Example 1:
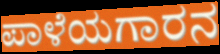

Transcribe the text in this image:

ಪಾಳೆಯಗಾರನ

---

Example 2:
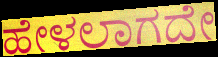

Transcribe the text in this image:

ಹೇಳಲಾಗದೇ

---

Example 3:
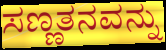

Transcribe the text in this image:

ಸಣ್ಣತನವನ್ನು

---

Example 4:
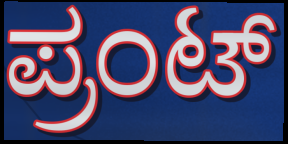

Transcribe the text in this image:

ಪ್ರಂಟ್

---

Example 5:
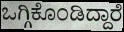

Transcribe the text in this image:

ಒಗ್ಗಿಕೊಂಡಿದ್ದಾರೆ